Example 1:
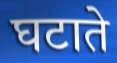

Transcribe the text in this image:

घटाते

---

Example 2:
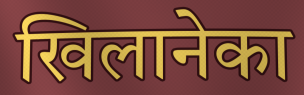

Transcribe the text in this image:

खिलानेका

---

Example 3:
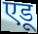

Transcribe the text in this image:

एडू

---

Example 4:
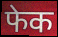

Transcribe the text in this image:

फेक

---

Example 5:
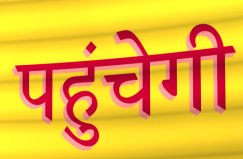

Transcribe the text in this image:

पहुंचेगी